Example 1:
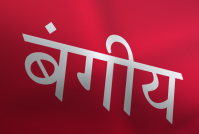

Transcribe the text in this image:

बंगीय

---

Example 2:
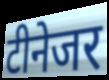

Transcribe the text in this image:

टीनेजर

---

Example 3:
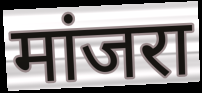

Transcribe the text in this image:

मांजरा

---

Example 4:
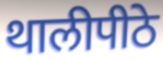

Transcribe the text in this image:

थालीपीठे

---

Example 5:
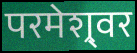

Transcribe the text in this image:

परमेश्र्वर